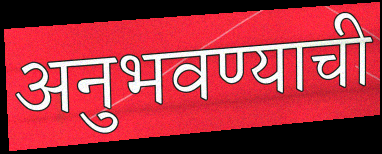
अनुभवण्याची